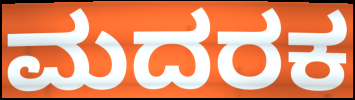
ಮದರಕ